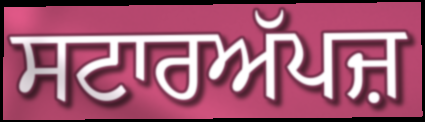
ਸਟਾਰਅੱਪਜ਼